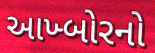
આખ્બોરનો